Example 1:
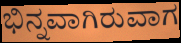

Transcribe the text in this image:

ಭಿನ್ನವಾಗಿರುವಾಗ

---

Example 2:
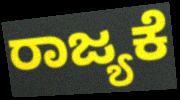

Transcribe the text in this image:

ರಾಜ್ಯಕೆ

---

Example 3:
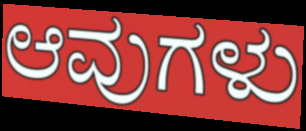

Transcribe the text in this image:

ಆವುಗಳು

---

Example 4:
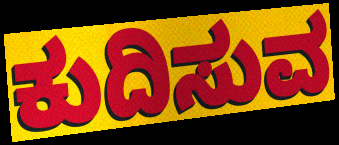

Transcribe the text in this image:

ಕುದಿಸುವ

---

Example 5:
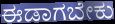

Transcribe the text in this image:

ಈಡಾಗಬೇಕು